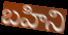
బహిని